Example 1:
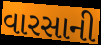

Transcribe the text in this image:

વારસાની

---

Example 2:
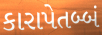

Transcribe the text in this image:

કારાપેતબ્બં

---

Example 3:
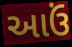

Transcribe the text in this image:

આઉં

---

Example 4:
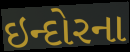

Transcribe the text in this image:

ઇન્દોરના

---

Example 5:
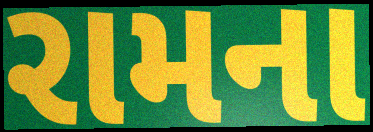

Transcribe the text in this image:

રામના